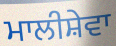
ਮਾਲੀਸ਼ੇਵਾ